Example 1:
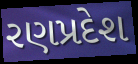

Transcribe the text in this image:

રણપ્રદેશ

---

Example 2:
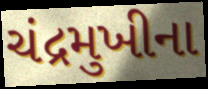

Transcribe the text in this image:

ચંદ્રમુખીના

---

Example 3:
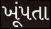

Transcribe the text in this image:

ખૂંપતા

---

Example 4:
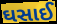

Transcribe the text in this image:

ઘસાઈ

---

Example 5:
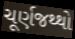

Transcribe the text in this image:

ચૂર્ણજથ્થો